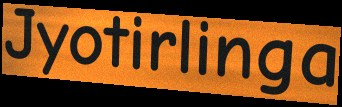
Jyotirlinga